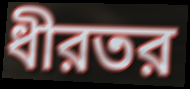
ধীরতর